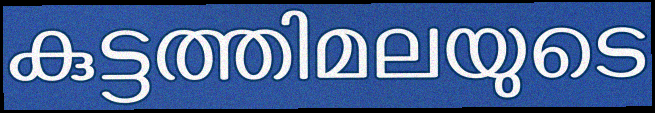
കുട്ടത്തിമലയുടെ